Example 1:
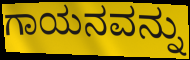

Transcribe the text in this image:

ಗಾಯನವನ್ನು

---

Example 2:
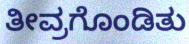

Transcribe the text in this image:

ತೀವ್ರಗೊಂಡಿತು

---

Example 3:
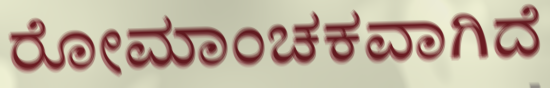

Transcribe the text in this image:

ರೋಮಾಂಚಕವಾಗಿದೆ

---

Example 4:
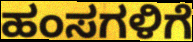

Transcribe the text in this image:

ಹಂಸಗಳಿಗೆ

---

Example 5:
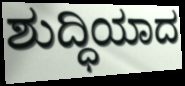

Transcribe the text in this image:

ಶುದ್ಧಿಯಾದ